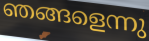
ഞങ്ങളെന്നു